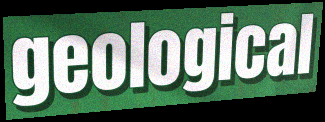
geological